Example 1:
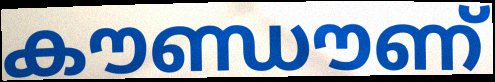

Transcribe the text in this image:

കൗണ്ഡൗണ്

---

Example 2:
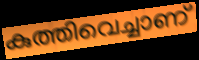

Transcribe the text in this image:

കുത്തിവെച്ചാണ്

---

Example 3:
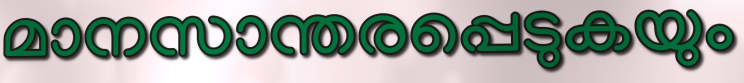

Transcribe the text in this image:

മാനസാന്തരപ്പെടുകയും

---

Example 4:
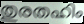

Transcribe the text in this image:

തുരതഹിം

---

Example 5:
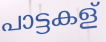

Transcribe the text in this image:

പാട്ടകള്